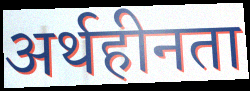
अर्थहीनता